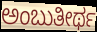
ಅಂಬುತೀರ್ಥ